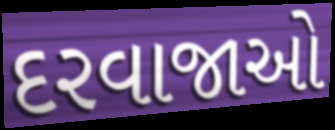
દરવાજાઓ